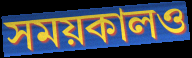
সময়কালও